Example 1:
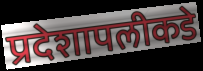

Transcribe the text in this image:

प्रदेशापलीकडे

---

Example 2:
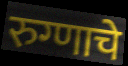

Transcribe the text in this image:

रुग्‍णाचे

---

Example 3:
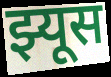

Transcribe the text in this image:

झ्यूस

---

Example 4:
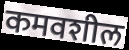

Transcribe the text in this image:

कमवशील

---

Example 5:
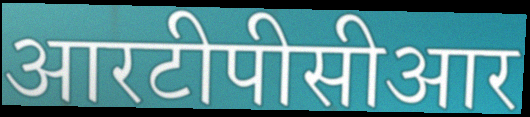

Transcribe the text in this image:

आरटीपीसीआर